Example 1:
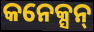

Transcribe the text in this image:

କନେକ୍ସନ୍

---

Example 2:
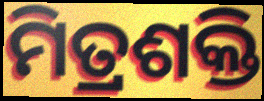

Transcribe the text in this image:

ମିତ୍ରଶକ୍ତି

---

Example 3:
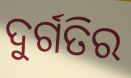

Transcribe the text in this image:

ଦୁର୍ଗତିର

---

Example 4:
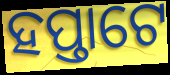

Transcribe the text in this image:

ହପ୍ତାଟେ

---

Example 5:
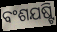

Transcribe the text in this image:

ବଂଶଯଷ୍ଟି